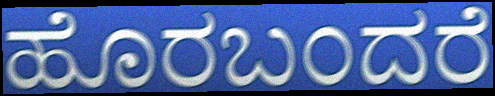
ಹೊರಬಂದರೆ